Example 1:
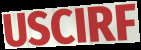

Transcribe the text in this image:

USCIRF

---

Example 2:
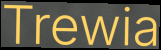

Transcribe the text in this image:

Trewia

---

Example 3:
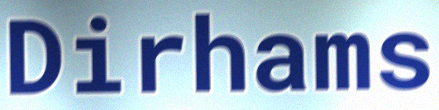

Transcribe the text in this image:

Dirhams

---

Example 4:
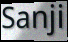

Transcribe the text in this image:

Sanji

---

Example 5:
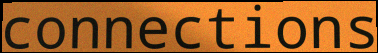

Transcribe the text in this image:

connections